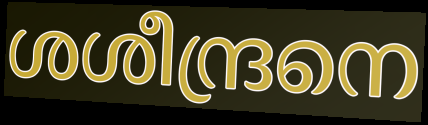
ശശീന്ദ്രനെ